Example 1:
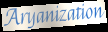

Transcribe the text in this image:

Aryanization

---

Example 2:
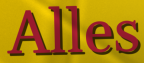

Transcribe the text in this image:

Alles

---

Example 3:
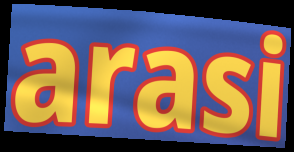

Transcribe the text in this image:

arasi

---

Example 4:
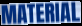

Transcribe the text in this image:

MATERIAL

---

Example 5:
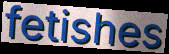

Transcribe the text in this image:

fetishes